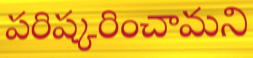
పరిష్కరించామని